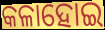
କଳାହୋଇ